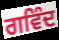
ਗਵਿੰਦ